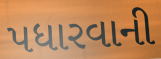
પધારવાની